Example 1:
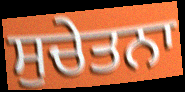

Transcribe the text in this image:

ਸੁਚੇਤਨਾ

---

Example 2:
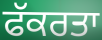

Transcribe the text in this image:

ਫੱਕਰਤਾ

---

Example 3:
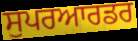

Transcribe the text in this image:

ਸੁਪਰਆਰਡਰ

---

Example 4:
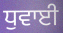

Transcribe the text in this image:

ਧੁਵਾਈ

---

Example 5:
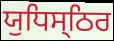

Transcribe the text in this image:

ਯੁਧਿਸ੍ਠਿਰ